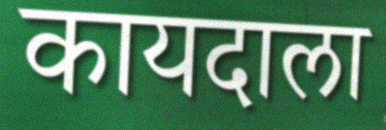
कायदाला